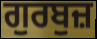
ਗੁਰਬੁਜ਼